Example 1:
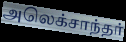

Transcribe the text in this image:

அலெக்சாந்தர்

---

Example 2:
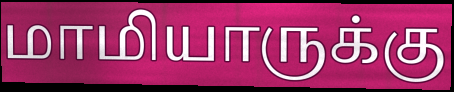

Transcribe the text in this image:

மாமியாருக்கு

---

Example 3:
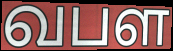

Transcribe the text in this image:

வபள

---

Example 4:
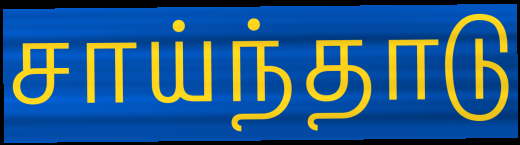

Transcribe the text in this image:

சாய்ந்தாடு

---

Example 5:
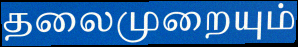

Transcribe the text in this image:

தலைமுறையும்